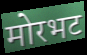
मोरभट